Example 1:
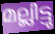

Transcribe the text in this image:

മല്ലിട്ടു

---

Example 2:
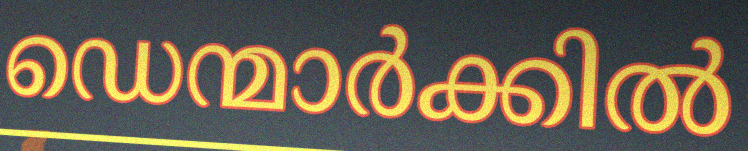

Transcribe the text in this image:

ഡെന്മാർക്കിൽ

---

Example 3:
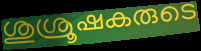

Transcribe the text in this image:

ശുശ്രൂഷകരുടെ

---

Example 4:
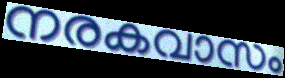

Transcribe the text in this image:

നരകവാസം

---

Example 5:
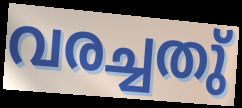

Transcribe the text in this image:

വരച്ചതു്